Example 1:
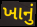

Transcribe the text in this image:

ખાનું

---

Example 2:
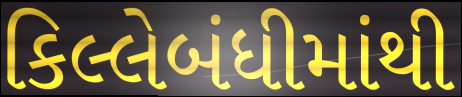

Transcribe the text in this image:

કિલ્લેબંધીમાંથી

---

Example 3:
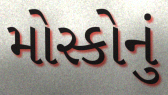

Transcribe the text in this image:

મોસ્કોનું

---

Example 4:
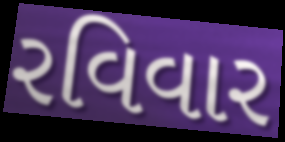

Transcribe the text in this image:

રવિવાર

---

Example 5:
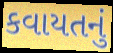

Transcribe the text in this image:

કવાયતનું